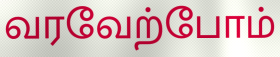
வரவேற்போம்